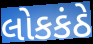
લોકકંઠે